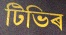
টিভিৰ